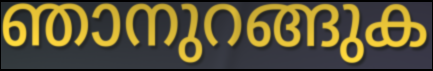
ഞാനുറങ്ങുക